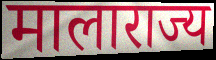
मालाराज्य